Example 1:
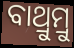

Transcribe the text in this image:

ବାଥ୍ରୁମ୍ରୁ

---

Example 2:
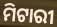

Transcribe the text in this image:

ମିଟାରୀ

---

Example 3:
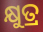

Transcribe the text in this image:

କ୍ଷୁତ୍ର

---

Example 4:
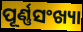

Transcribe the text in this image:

ପୂର୍ଣ୍ଣସଂଖ୍ୟା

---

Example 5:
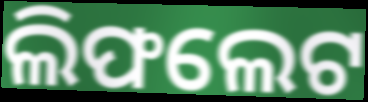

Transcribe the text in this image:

ଲିଫଲେଟ